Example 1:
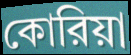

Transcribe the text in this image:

কোরিয়া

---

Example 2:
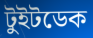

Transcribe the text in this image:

টুইটডেক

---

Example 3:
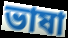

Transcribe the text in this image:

ভাষা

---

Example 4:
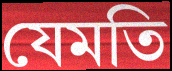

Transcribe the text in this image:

যেমতি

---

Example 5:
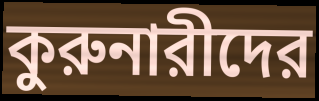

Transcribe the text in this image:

কুরুনারীদের